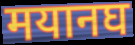
मयानघ